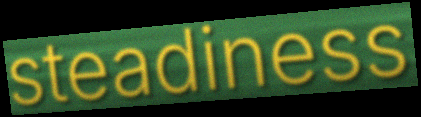
steadiness